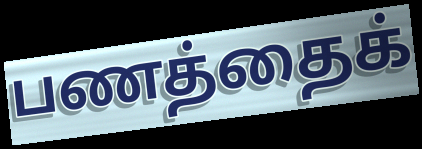
பணத்தைக்